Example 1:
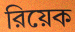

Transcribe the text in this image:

রিয়েক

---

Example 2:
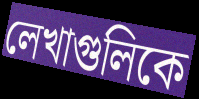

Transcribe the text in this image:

লেখাগুলিকে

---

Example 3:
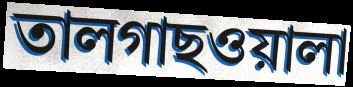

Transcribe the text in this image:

তালগাছওয়ালা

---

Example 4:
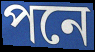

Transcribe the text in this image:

পনে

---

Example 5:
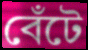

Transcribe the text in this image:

বেঁটে